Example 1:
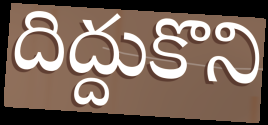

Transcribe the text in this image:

దిద్దుకొని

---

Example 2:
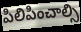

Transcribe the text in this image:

పిలిపించాల్సి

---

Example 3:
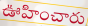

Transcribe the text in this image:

ఊహించారు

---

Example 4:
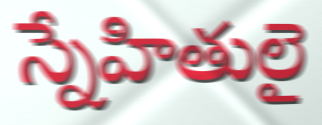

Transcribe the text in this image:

స్నేహితులై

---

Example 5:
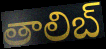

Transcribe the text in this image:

తాలిబ్